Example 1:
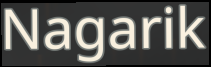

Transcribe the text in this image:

Nagarik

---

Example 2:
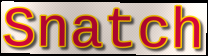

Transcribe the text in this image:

Snatch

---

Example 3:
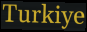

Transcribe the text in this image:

Turkiye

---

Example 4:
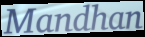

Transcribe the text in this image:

Mandhan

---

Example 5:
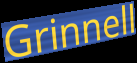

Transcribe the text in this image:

Grinnell